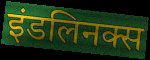
इंडलिनक्स